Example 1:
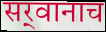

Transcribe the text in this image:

सर्वानाच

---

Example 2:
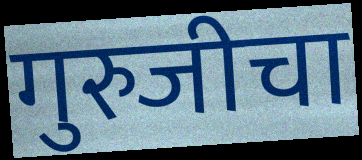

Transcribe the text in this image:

गुरुजीचा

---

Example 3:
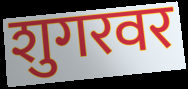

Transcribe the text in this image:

शुगरवर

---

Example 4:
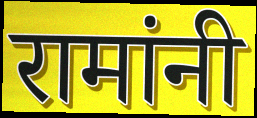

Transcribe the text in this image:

रामांनी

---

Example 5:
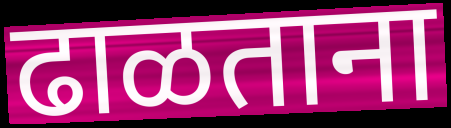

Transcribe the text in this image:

ढाळताना